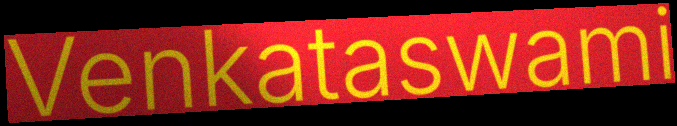
Venkataswami